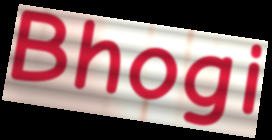
Bhogi